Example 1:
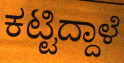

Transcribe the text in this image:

ಕಟ್ಟಿದ್ದಾಳೆ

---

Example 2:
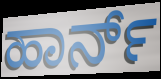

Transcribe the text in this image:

ಹಾರ್ನ್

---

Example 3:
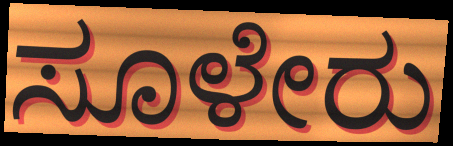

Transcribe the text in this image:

ಸೂಳೇರು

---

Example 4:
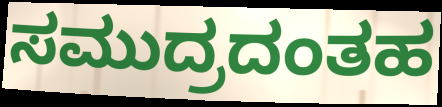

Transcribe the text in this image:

ಸಮುದ್ರದಂತಹ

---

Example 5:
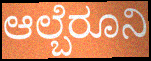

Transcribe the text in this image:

ಆಲ್ಬೆರೂನಿ